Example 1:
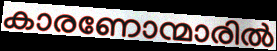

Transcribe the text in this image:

കാരണോന്മാരിൽ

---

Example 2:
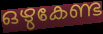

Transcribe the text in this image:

ഒഴുകേണ്ട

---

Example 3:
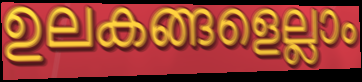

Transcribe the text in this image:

ഉലകങ്ങളെല്ലാം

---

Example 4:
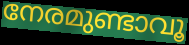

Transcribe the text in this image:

നേരമുണ്ടാവൂ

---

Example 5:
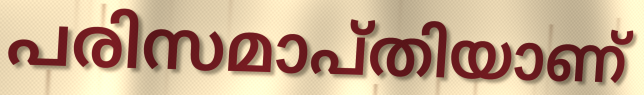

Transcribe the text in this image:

പരിസമാപ്തിയാണ്